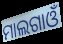
ମାଲଗାଓଁ